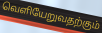
வெளியேறுவதற்கும்